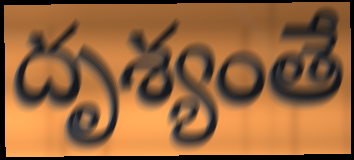
దృశ్యంతే